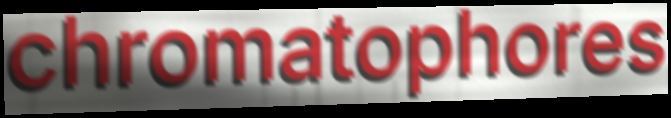
chromatophores